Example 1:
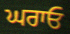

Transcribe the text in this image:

ਘਰਾਓ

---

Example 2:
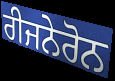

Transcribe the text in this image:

ਰੀਜਨੇਰੋਨ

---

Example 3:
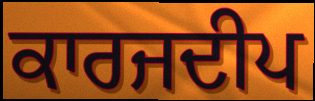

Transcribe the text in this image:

ਕਾਰਜਦੀਪ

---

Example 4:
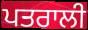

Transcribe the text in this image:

ਪਤਰਾਲੀ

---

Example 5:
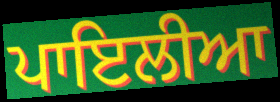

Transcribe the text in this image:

ਪਾਇਲੀਆ